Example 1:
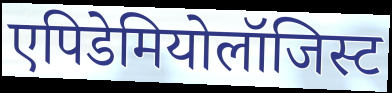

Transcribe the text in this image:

एपिडेमियोलॉजिस्ट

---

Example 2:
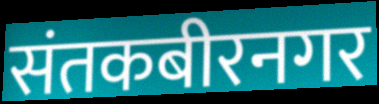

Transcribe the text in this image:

संतकबीरनगर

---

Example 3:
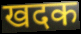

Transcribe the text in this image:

खदक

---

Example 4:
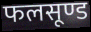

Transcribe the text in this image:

फलसूण्ड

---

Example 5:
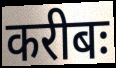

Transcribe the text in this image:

करीबः